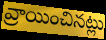
వ్రాయించినట్లు